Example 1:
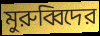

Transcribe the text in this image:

মুরুব্বিদের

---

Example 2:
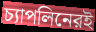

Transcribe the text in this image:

চ্যাপলিনেরই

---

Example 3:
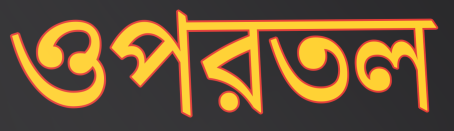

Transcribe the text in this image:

ওপরতল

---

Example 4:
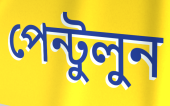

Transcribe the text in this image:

পেন্টুলুন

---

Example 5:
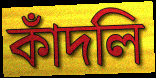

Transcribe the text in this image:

কাঁদলি